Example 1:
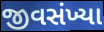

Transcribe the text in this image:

જીવસંખ્યા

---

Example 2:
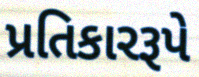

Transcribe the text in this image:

પ્રતિકારરૂપે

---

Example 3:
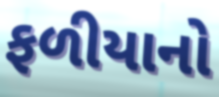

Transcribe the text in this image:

ફળીયાનો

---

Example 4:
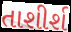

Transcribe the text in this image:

તાશીર્શ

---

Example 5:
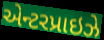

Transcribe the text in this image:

એન્ટરપ્રાઇઝે